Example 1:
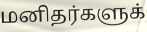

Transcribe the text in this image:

மனிதர்களுக்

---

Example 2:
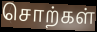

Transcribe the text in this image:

சொற்கள்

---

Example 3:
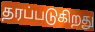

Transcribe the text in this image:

தரப்படுகிறது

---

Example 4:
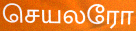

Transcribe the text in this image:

செயலரோ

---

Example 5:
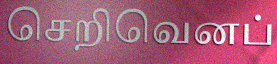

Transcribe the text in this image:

செறிவெனப்